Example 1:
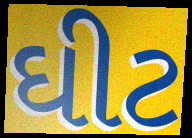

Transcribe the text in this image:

ઘીટ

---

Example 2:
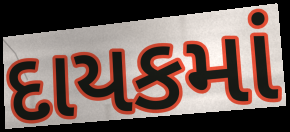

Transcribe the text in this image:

દાયકમાં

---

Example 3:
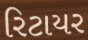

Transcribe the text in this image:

રિટાયર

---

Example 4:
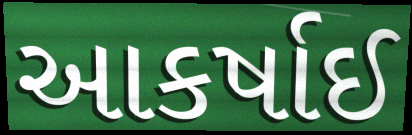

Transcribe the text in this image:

આકર્ષાઈ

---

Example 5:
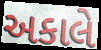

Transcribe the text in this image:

અકાલે